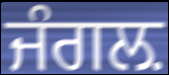
ਜੰਗਲ਼